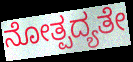
ನೋತ್ಪದ್ಯತೇ